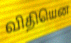
விதியென